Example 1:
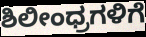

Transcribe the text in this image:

ಶಿಲೀಂಧ್ರಗಳಿಗೆ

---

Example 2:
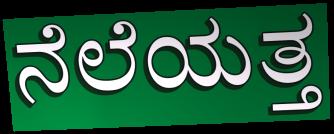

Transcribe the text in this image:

ನೆಲೆಯತ್ತ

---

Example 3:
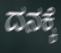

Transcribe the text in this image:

ದನಕ್ಕೆ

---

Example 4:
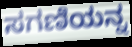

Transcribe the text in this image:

ಸಗಣಿಯನ್ನ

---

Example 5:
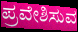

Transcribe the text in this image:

ಪ್ರವೇಶಿಸುವ